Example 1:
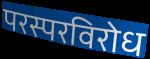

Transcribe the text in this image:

परस्परविरोध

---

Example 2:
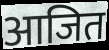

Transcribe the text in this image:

आजित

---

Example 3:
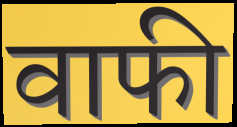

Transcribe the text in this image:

वाफी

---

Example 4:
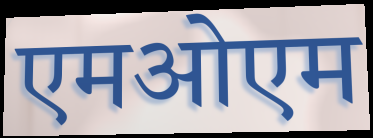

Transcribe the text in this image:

एमओएम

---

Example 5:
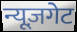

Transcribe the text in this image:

न्यूज़गेट